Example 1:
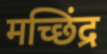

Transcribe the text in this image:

मच्छिंद्र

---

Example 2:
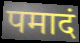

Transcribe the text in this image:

पमादं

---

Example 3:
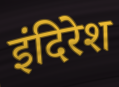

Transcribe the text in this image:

इंदिरेश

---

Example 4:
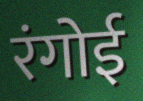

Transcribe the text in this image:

रंगोई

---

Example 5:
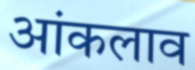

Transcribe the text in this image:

आंकलाव